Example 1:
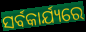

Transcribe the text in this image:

ସର୍ବକାର୍ଯ୍ୟରେ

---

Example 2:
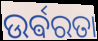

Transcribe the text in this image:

ଉର୍ଵରତା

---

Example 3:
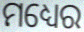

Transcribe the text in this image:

ମଧ୍ୟେର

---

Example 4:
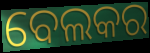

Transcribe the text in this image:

ବେଲକର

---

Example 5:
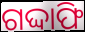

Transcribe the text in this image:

ଗଦ୍ଦାଫି